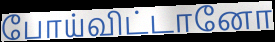
போய்விட்டானோ